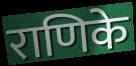
राणिके